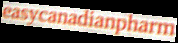
easycanadianpharm